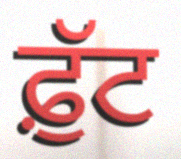
ਫ਼ੁੱਟ